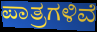
ಪಾತ್ರಗಳಿವೆ